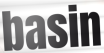
basin